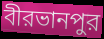
বীরভানপুর